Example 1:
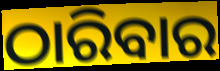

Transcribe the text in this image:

ଠାରିବାର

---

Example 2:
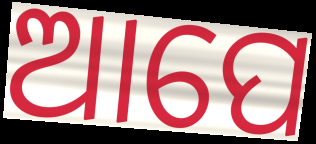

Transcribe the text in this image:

ଆପେ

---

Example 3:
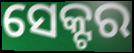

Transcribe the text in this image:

ସେକ୍ଟର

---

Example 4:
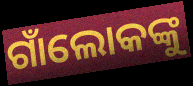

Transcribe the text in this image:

ଗାଁଲୋକଙ୍କୁ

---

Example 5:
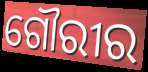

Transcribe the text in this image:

ଗୌରୀର